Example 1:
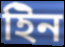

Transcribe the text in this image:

ইিন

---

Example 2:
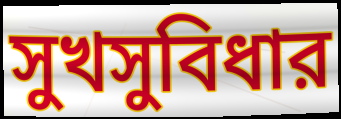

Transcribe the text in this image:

সুখসুবিধার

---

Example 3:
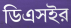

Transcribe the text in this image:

ডিএসইর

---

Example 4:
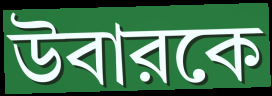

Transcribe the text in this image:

উবারকে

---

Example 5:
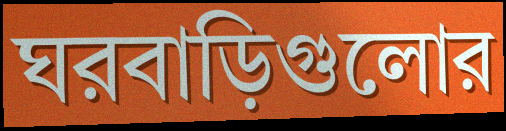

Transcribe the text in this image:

ঘরবাড়িগুলোর